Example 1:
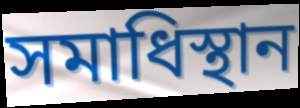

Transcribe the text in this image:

সমাধিস্থান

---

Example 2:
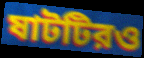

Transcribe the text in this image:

ষাটটিরও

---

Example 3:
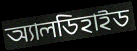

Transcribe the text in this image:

অ্যালডিহাইড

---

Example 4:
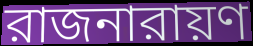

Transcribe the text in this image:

রাজনারায়ণ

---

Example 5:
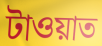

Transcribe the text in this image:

টাওয়াত